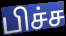
பிச்ச